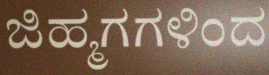
ಜಿಹ್ಮಗಗಳಿಂದ